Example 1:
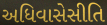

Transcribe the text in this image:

અધિવાસેસીતિ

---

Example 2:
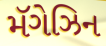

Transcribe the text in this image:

મૅગેઝિન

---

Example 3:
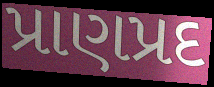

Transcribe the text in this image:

પ્રાણપ્રદ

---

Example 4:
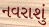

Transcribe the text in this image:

નવરાશું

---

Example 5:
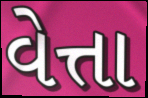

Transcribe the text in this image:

વેત્તા